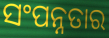
ସଂପନ୍ନତାର